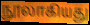
நூலாகியது